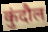
कुंदौल